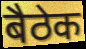
बैठेक